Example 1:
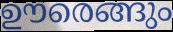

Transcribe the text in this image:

ഊരെങ്ങും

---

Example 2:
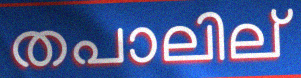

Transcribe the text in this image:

തപാലില്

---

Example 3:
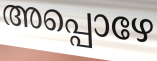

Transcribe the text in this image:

അപ്പൊഴേ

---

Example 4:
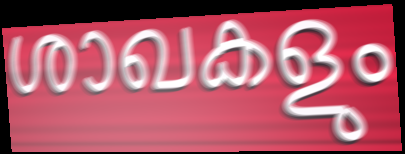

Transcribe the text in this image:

ശാഖകളും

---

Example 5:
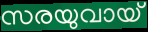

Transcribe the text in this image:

സരയുവായ്